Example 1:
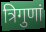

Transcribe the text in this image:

त्रिगुणां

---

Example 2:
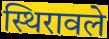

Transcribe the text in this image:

स्थिरावले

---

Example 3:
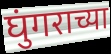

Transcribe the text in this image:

घुंगराच्या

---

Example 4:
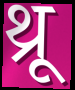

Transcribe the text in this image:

थ्रू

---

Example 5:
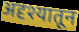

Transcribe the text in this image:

अदृश्यातून